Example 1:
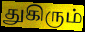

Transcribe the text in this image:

துகிரும்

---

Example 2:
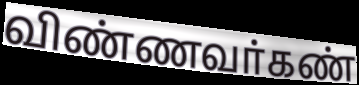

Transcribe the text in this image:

விண்ணவர்கண்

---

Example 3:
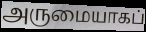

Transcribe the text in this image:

அருமையாகப்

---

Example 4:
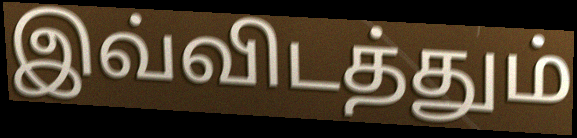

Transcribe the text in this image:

இவ்விடத்தும்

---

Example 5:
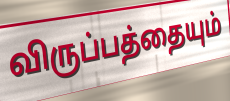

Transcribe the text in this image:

விருப்பத்தையும்